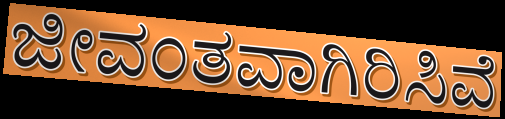
ಜೀವಂತವಾಗಿರಿಸಿವೆ